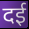
दई